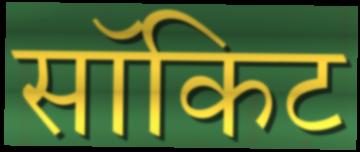
सॉकिट